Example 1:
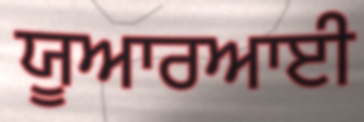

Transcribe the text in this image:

ਯੂਆਰਆਈ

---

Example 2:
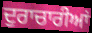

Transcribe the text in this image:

ਦੁਰਾਚਾਰੀਆਂ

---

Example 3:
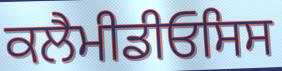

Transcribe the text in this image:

ਕਲੈਮੀਡੀਓਸਿਸ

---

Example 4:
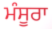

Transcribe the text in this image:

ਮੰਸੂਰਾ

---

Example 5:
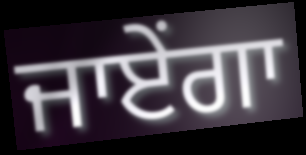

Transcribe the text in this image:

ਜਾਏਂਗਾ